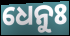
ଧେନୁଃ